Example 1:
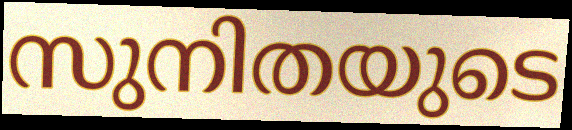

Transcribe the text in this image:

സുനിതയുടെ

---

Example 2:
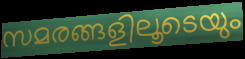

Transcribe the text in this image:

സമരങ്ങളിലൂടെയും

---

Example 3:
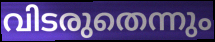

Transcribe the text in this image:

വിടരുതെന്നും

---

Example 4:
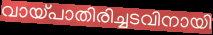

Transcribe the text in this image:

വായ്പാതിരിച്ചടവിനായി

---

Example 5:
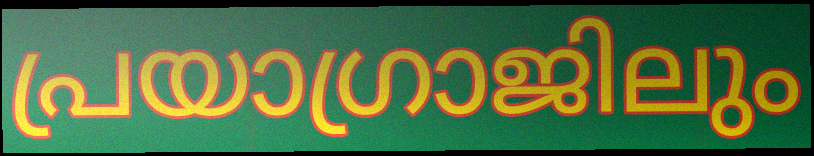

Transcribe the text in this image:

പ്രയാഗ്രാജിലും